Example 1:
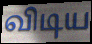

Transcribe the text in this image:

விடிய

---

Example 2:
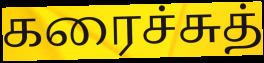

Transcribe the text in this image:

கரைச்சுத்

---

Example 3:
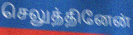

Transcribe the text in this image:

செலுத்தினேன்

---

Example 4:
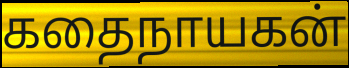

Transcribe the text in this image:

கதைநாயகன்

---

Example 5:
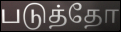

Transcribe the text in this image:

படுத்தோ